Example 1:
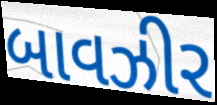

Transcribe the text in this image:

બાવઝીર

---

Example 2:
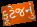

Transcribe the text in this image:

ફૂટેજનું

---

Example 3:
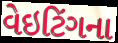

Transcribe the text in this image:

વેઇટિંગના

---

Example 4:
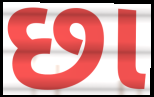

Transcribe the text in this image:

છા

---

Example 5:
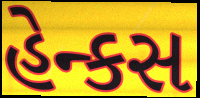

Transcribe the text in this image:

હેન્કસ